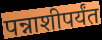
पन्नाशीपर्यंत